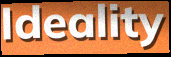
Ideality